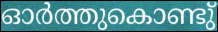
ഓർത്തുകൊണ്ടു്